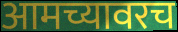
आमच्यावरच